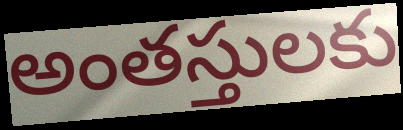
అంతస్తులకు